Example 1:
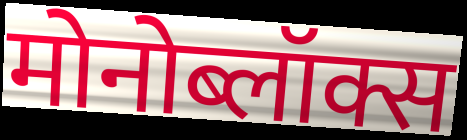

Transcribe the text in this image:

मोनोब्लॉक्स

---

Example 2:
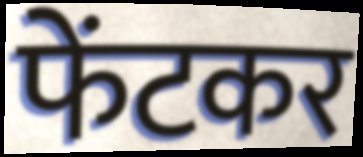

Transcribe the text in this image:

फेंटकर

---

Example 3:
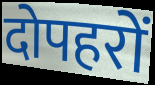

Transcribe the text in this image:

दोपहरों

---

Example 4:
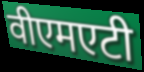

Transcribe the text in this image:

वीएमएटी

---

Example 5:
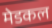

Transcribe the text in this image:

मेडकल